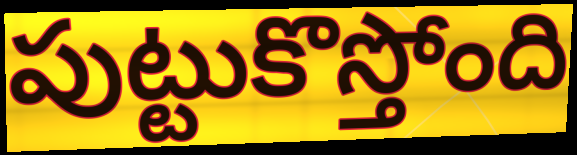
పుట్టుకొస్తోంది